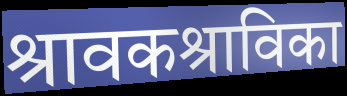
श्रावकश्राविका